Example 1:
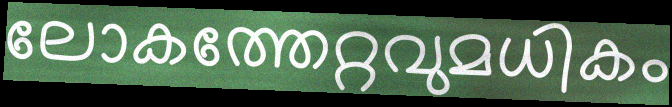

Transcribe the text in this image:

ലോകത്തേറ്റവുമധികം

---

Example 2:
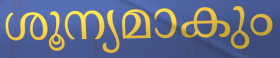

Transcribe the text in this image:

ശൂന്യമാകും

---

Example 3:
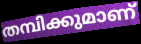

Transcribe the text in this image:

തമ്പിക്കുമാണ്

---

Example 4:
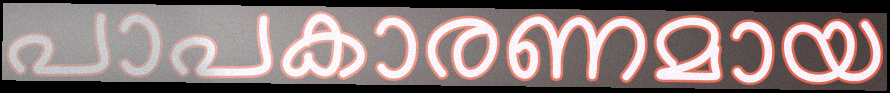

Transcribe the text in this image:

പാപകാരണമായ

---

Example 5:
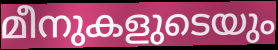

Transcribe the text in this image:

മീനുകളുടെയും